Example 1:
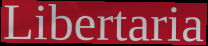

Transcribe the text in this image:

Libertaria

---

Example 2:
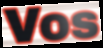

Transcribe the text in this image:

Vos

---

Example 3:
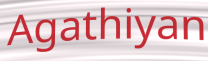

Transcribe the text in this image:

Agathiyan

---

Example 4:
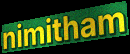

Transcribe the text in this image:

nimitham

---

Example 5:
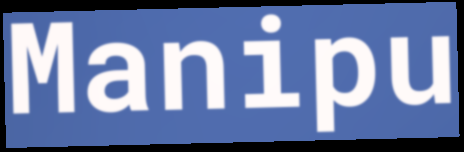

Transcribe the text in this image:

Manipu